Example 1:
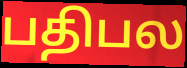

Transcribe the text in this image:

பதிபல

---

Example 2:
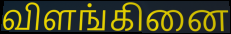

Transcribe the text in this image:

விளங்கினை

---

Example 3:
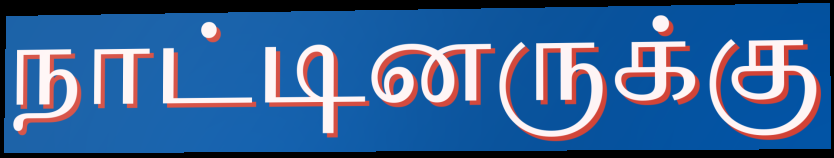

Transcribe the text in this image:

நாட்டினருக்கு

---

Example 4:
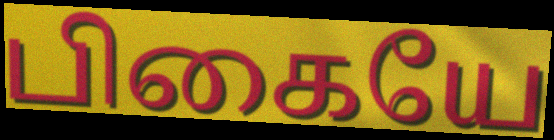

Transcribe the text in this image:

பிகையே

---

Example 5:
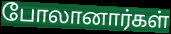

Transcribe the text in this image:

போலானார்கள்